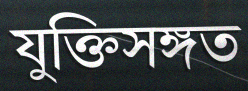
যুক্তিসঙ্গত